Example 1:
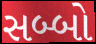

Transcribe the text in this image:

સબ્બો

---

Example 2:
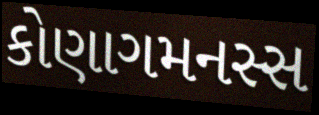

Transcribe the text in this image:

કોણાગમનસ્સ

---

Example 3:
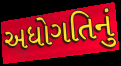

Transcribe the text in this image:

અધોગતિનું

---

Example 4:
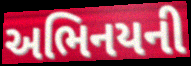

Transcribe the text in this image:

અભિનયની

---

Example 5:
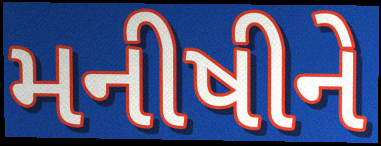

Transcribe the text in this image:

મનીષીને